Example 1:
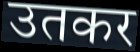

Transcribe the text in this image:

उतकर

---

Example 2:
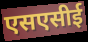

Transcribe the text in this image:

एसएसीई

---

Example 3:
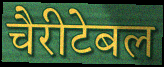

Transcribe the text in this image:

चैरीटेबल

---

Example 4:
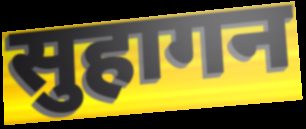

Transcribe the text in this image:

सुहागन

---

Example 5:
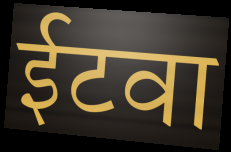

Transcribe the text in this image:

ईटवा